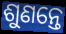
ଶୁଣନ୍ତେ